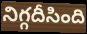
నిగ్గదీసింది